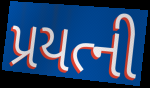
પ્રયત્ની